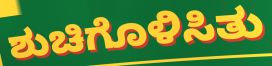
ಶುಚಿಗೊಳಿಸಿತು